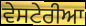
ਵੇਸਟੇਰੀਆ